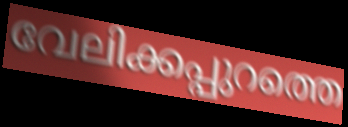
വേലിക്കപ്പുറത്തെ